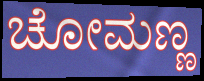
ಚೋಮಣ್ಣ